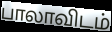
பாலாவிடம்